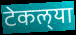
टेकल्या